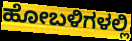
ಹೋಬಳಿಗಳಲ್ಲಿ